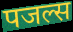
पजल्स